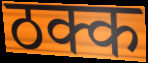
ठक्क